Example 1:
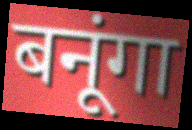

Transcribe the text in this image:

बनूंगा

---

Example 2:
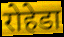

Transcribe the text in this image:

रोहेडा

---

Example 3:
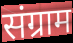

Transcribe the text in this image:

संग्राम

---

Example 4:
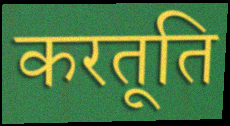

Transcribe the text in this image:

करतूति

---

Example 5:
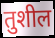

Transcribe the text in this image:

तुशील